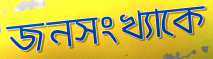
জনসংখ্যাকে